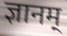
ज्ञानम्